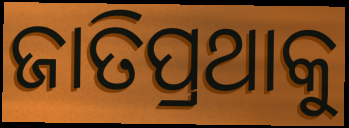
ଜାତିପ୍ରଥାକୁ